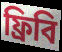
ফ্রিবি